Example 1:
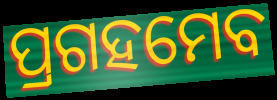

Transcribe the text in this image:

ପ୍ରଗହମେବ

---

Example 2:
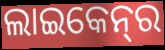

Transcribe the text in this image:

ଲାଇକେନ୍‌ର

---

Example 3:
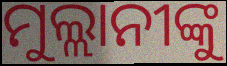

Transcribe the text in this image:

ମୁଲ୍ଲାନୀଙ୍କୁ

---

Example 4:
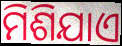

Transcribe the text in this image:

ମିଶିଯାଏ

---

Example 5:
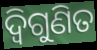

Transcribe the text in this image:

ଦ୍ୱିଗୁଣିତ